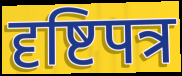
दृष्टिपत्र